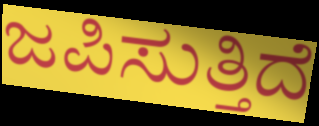
ಜಪಿಸುತ್ತಿದೆ